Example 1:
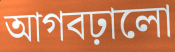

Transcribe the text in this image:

আগবঢ়ালো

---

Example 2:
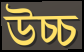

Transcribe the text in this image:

উচ্চ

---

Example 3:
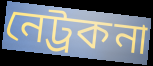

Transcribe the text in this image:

নেট্ৰকনা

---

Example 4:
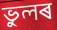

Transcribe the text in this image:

ভুলৰ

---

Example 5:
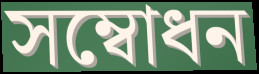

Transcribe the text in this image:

সম্বোধন